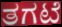
ತಗಟೆ